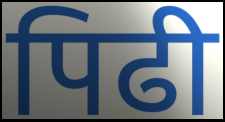
पिढी